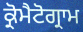
ਕ੍ਰੋਮੈਟੋਗ੍ਰਾਮ